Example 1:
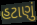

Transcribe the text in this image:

હટાણું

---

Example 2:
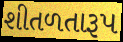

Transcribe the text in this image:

શીતળતારૂપ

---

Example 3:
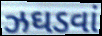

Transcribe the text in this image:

ઝઘડવાં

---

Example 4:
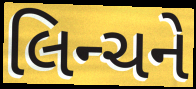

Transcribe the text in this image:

લિન્ચને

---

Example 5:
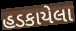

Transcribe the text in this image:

હડકાયેલા